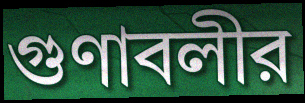
গুণাবলীর